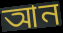
আন